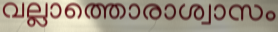
വല്ലാത്തൊരാശ്വാസം